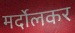
मर्दोलकर